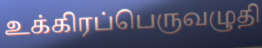
உக்கிரப்பெருவழுதி